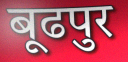
बूढपुर